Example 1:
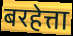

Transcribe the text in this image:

बरहेत्ता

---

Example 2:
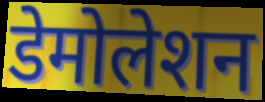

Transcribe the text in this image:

डेमोलेशन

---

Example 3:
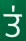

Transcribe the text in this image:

उ॑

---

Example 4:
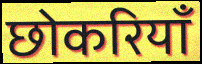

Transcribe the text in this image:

छोकरियाँ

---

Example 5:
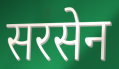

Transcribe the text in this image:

सरसेन